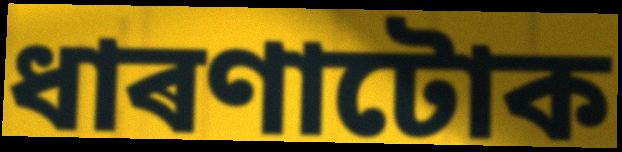
ধাৰণাটোক